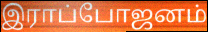
இராப்போஜனம்